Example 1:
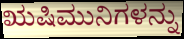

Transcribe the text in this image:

ಋಷಿಮುನಿಗಳನ್ನು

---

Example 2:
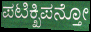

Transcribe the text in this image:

ಪಟಿಕ್ಖಿಪನ್ತೋ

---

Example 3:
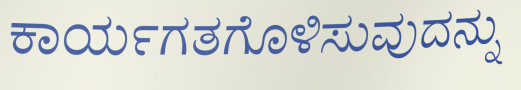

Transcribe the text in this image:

ಕಾರ್ಯಗತಗೊಳಿಸುವುದನ್ನು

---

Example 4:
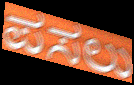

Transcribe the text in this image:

ಪಸಲು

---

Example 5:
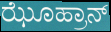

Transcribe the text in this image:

ಝೊಹ್ರಾನ್